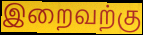
இறைவற்கு